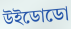
উইডোডো